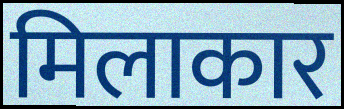
मिलाकार